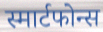
स्मार्टफोन्स